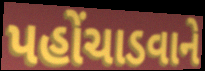
પહોંચાડવાને